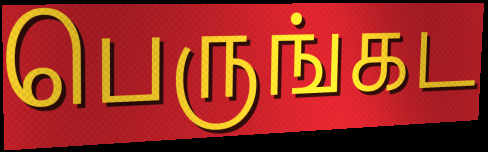
பெருங்கட